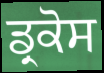
ਡ੍ਰਕੋਸ